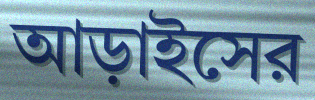
আড়াইসের